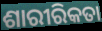
ଶାରୀରିକତା